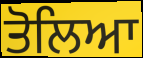
ਤੋਲਿਆ